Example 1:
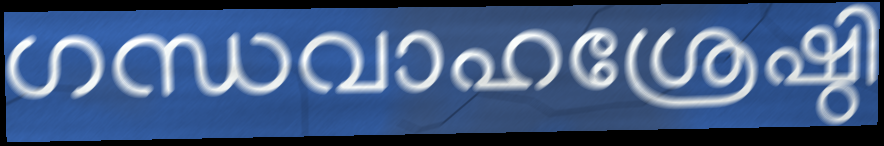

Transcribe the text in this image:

ഗന്ധവാഹശ്രേഷ്ഠി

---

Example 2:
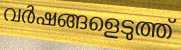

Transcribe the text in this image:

വർഷങ്ങളെടുത്ത്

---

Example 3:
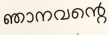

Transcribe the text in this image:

ഞാനവന്റെ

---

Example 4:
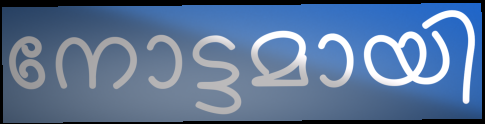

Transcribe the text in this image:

നോട്ടമായി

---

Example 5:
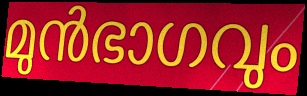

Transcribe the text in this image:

മുൻഭാഗവും